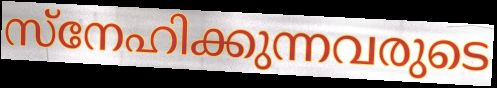
സ്നേഹിക്കുന്നവരുടെ